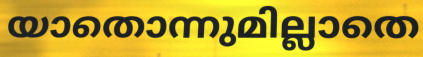
യാതൊന്നുമില്ലാതെ